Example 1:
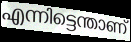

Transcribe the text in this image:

എന്നിട്ടെന്താണ്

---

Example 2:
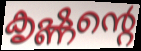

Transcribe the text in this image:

കൃഷ്ണന്റെ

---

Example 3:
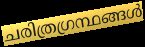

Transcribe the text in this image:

ചരിത്രഗ്രന്ഥങ്ങൾ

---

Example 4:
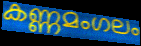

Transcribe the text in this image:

കണ്ണമംഗലം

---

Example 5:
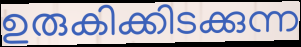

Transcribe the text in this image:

ഉരുകിക്കിടക്കുന്ന